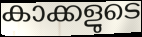
കാക്കളുടെ